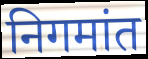
निगमांत